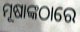
ମୂଷାଙ୍କଠାରେ